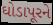
ઘોડાપૂરને